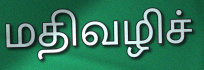
மதிவழிச்